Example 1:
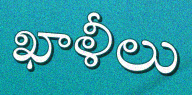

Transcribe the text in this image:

ఖాళీలు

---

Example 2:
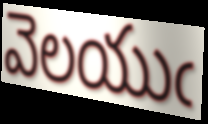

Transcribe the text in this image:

వెలయుఁ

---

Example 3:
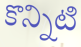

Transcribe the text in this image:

కొన్నిటి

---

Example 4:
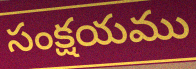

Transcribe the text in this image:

సంక్షయము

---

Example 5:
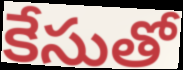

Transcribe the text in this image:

కేసుతో